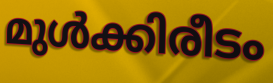
മുൾക്കിരീടം